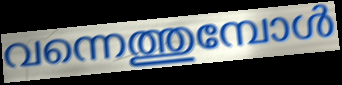
വന്നെത്തുമ്പോൾ